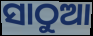
ସାଠୁଆ